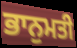
ਭਾਨੁਮਤੀ